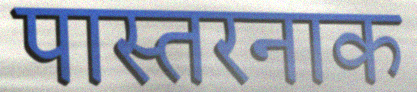
पास्तरनाक